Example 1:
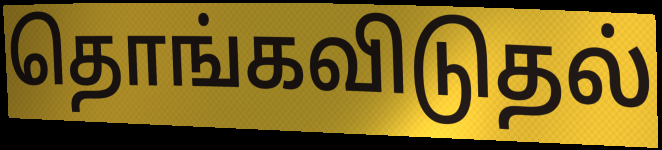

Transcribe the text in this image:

தொங்கவிடுதல்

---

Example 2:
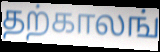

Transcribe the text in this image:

தற்காலங்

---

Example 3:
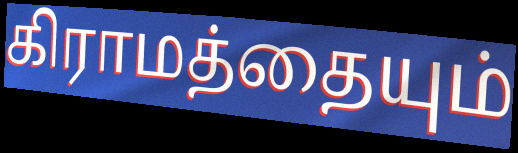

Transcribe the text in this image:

கிராமத்தையும்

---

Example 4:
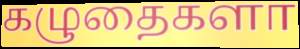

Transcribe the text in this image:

கழுதைகளா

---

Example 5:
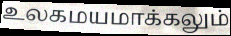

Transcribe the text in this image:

உலகமயமாக்கலும்